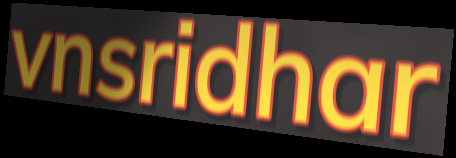
vnsridhar